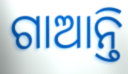
ଗାଆନ୍ତି